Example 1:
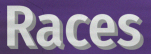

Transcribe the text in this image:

Races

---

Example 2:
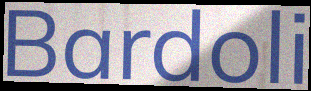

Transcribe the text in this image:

Bardoli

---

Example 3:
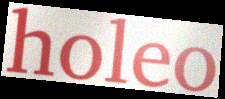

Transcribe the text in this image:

holeo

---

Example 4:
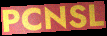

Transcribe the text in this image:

PCNSL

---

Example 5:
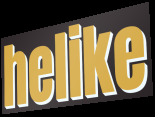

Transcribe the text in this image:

helike